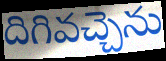
దిగివచ్చెను